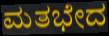
ಮತಭೇದ